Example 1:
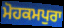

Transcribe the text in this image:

ਮੋਹਕਮਪੁਰਾ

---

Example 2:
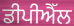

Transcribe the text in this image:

ਡੀਪੀਐੱਲ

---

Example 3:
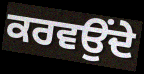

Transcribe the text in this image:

ਕਰਵਉਂਦੇ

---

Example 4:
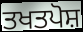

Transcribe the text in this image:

ਤਖਤਪੋਸ਼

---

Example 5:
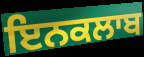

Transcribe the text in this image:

ਇਨਕਲਾਬ